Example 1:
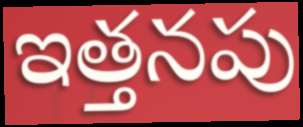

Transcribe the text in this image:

ఇత్తనపు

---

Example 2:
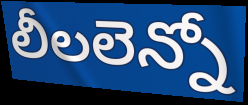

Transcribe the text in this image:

లీలలెన్నో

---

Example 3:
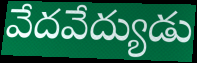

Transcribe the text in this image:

వేదవేద్యుడు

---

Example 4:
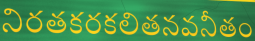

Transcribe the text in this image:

నిరతకరకలితనవనీతం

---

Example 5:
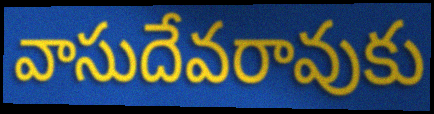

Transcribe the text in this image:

వాసుదేవరావుకు